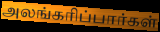
அலங்கரிப்பார்கள்